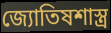
জ্যোতিষশাস্ত্র